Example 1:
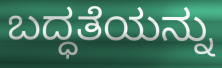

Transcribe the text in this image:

ಬದ್ಧತೆಯನ್ನು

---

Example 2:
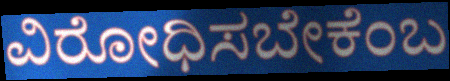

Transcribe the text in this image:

ವಿರೋಧಿಸಬೇಕೆಂಬ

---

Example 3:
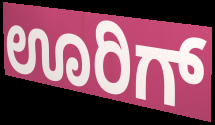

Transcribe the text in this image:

ಊರಿಗ್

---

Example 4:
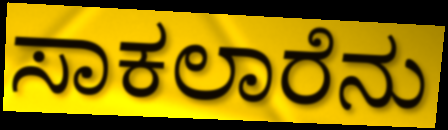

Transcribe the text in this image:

ಸಾಕಲಾರೆನು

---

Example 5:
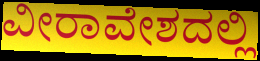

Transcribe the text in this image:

ವೀರಾವೇಶದಲ್ಲಿ